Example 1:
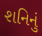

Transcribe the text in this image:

શનિનું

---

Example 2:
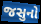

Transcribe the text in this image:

જસુનો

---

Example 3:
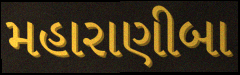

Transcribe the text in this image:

મહારાણીબા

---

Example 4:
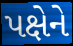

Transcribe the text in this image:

પક્ષેને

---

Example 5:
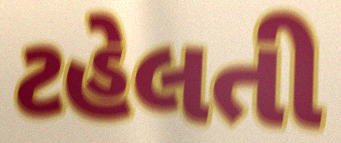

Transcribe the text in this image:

ટહેલતી